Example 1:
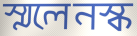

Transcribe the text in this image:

স্মলেনস্ক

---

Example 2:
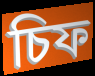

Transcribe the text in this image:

চিফ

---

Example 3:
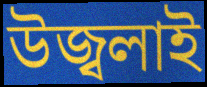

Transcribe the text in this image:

উজ্বলাই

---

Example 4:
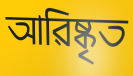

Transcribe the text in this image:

আৱিষ্কৃত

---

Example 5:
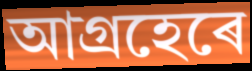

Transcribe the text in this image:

আগ্ৰহেৰে